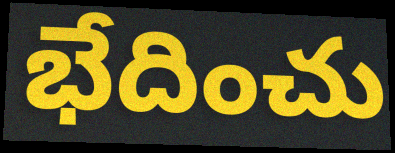
భేదించు